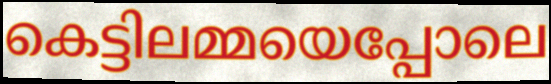
കെട്ടിലമ്മയെപ്പോലെ